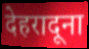
देहरादूना